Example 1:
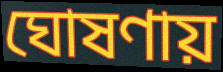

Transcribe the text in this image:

ঘোষণায়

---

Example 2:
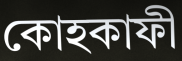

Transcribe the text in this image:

কোহকাফী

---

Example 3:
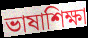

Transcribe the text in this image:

ভাষাশিক্ষা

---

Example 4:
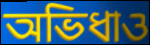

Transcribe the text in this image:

অভিধাও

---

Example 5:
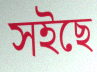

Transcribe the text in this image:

সইছে